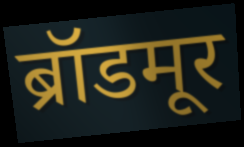
ब्रॉडमूर